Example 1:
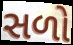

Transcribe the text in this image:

સળો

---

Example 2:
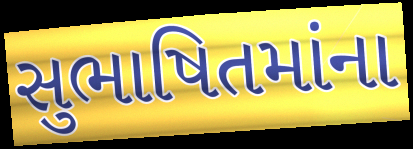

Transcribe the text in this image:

સુભાષિતમાંના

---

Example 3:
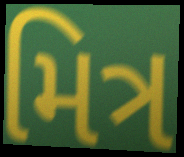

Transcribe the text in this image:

મિત્ર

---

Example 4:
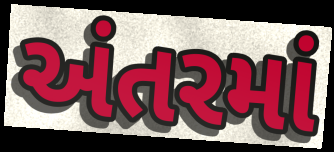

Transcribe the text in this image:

અંતરમાં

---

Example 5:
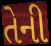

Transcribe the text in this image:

તેની